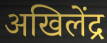
अखिलेंद्र